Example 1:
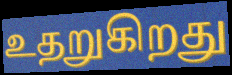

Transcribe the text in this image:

உதறுகிறது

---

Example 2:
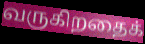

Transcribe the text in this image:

வருகிறதைக்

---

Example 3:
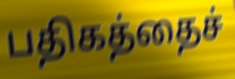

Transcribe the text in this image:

பதிகத்தைச்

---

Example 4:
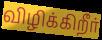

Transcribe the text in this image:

விழிக்கிறீர்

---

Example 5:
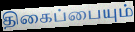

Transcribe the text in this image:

திகைப்பையும்